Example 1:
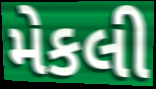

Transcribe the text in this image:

મેકલી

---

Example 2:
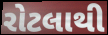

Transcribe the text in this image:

રોટલાથી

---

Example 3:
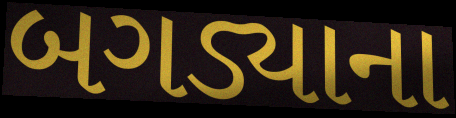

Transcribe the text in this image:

બગડ્યાના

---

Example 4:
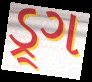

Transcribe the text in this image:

ડ્ર્ગ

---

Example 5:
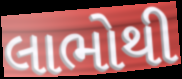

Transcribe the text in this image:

લાભોથી